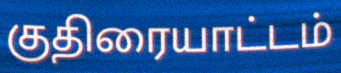
குதிரையாட்டம்